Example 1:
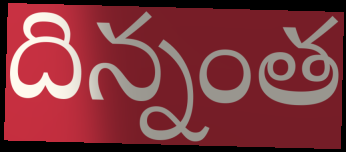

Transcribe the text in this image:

దిన్నంత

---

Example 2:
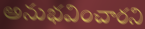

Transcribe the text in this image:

అనుభవించారని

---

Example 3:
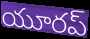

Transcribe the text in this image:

యూరప్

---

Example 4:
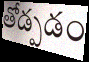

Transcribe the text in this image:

తోడ్పడం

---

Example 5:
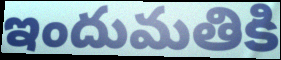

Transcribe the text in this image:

ఇందుమతికి